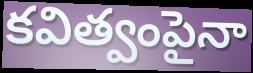
కవిత్వంపైనా